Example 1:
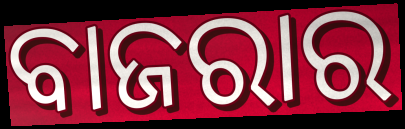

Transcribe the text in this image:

ବାଜରାର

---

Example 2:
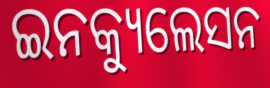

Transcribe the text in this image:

ଇନକ୍ୟୁଲେସନ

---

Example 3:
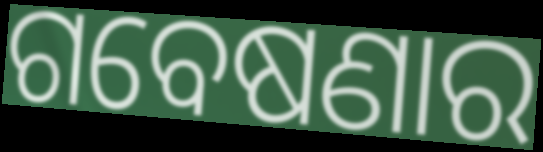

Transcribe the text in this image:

ଗବେଷଣାର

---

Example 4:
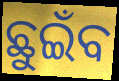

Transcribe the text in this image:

ଛୁଇଁବ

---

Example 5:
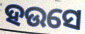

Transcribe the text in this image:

ହଉସେ